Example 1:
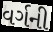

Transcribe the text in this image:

વર્ગની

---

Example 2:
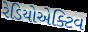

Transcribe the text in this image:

રેડિયોએક્ટિવ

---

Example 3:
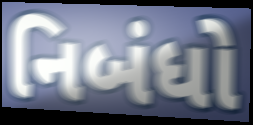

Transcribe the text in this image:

નિબંધો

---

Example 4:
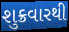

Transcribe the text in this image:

શુક્રવારથી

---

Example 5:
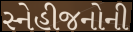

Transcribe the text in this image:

સ્નેહીજનોની